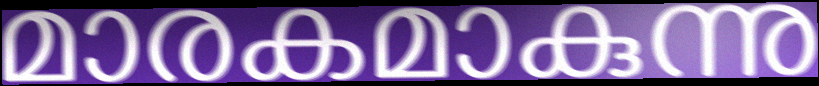
മാരകമാകുന്നു